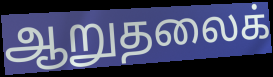
ஆறுதலைக்